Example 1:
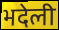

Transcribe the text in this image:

भदेली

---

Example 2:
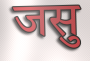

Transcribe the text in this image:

जसु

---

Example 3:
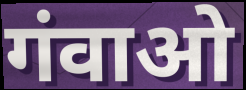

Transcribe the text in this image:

गंवाओ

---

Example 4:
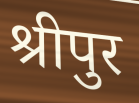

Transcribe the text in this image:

श्रीपुर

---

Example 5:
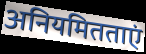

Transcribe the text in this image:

अनियमितताएं